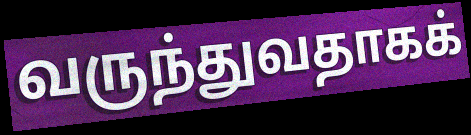
வருந்துவதாகக்